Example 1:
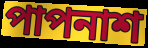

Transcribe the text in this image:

পাপনাশ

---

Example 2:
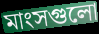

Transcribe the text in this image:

মাংসগুলো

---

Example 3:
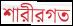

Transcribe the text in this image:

শারীরগত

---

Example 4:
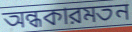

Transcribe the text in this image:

অন্ধকারমতন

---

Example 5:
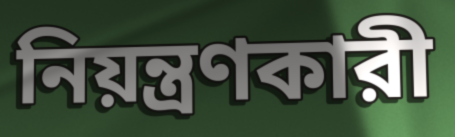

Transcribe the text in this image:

নিয়ন্ত্রণকারী